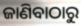
ଜାଣିବାଠାରୁ